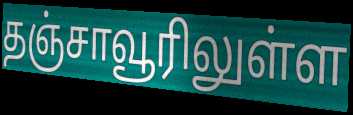
தஞ்சாவூரிலுள்ள